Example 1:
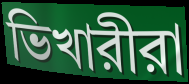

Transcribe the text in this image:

ভিখারীরা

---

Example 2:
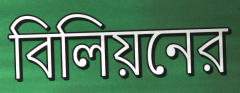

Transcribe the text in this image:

বিলিয়নের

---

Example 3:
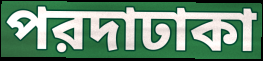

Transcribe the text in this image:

পরদাঢাকা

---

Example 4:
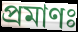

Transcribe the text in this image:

প্রমাণঃ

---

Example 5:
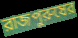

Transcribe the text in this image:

রাজপুরুষের